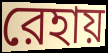
রেহায়